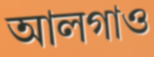
আলগাও